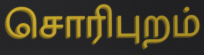
சொரிபுறம்